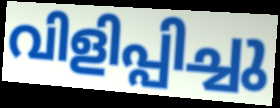
വിളിപ്പിച്ചു